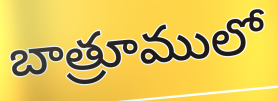
బాత్రూములో